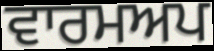
ਵਾਰਮਅਪ